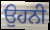
ਉਹਨੀ